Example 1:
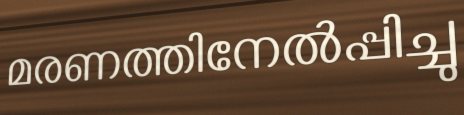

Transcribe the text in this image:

മരണത്തിനേൽപ്പിച്ചു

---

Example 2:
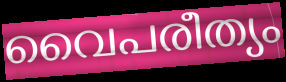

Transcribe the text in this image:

വൈപരീത്യം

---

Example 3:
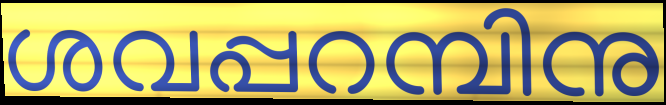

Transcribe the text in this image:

ശവപ്പറമ്പിനു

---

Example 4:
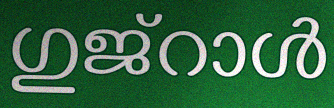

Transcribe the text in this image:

ഗുജ്റാൾ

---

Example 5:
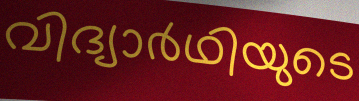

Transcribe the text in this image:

വിദ്യാർഥിയുടെ